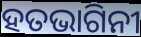
ହତଭାଗିନୀ